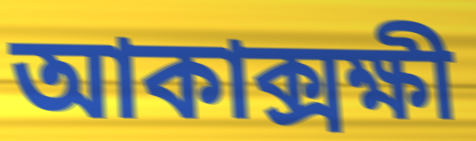
আকাক্সক্ষী